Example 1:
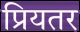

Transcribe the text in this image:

प्रियतर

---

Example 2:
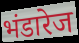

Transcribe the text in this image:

भंडारेज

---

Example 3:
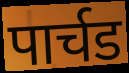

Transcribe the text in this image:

पार्चड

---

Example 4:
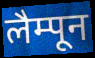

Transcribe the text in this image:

लैम्पून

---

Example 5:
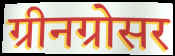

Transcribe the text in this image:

ग्रीनग्रोसर